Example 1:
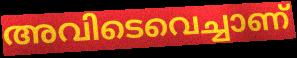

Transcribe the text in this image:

അവിടെവെച്ചാണ്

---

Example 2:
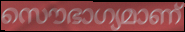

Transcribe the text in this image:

സൌഭാഗ്യമാണ്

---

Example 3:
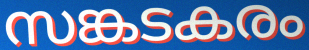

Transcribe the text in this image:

സങ്കടകരം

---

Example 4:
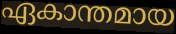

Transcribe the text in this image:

ഏകാന്തമായ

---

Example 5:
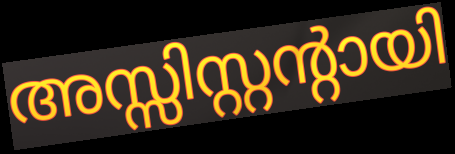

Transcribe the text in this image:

അസ്സിസ്റ്റന്റായി